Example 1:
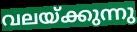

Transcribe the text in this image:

വലയ്ക്കുന്നു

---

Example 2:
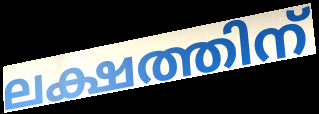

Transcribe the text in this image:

ലക്ഷത്തിന്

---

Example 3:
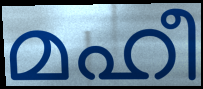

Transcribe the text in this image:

മഹീ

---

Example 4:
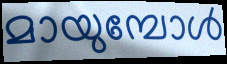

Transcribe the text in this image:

മായുമ്പോൾ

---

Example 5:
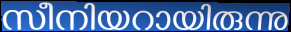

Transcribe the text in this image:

സീനിയറായിരുന്നു